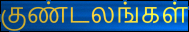
குண்டலங்கள்